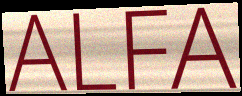
ALFA